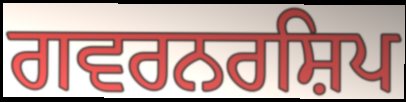
ਗਵਰਨਰਸ਼ਿਪ